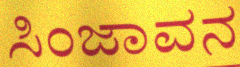
ಸಿಂಜಾವನ